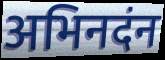
अभिनदंन